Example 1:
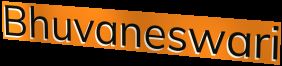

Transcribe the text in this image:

Bhuvaneswari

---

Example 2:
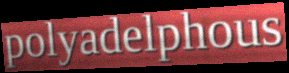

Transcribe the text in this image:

polyadelphous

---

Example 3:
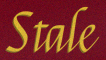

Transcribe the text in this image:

Stale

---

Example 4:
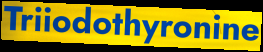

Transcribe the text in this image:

Triiodothyronine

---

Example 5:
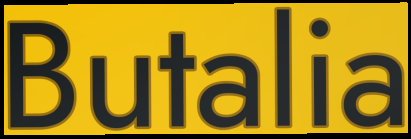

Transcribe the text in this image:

Butalia